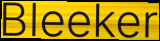
Bleeker